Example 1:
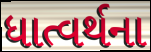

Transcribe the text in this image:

ધાત્વર્થના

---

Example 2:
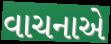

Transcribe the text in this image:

વાચનાએ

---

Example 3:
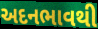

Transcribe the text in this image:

અદનભાવથી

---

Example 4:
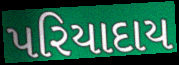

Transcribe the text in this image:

પરિયાદાય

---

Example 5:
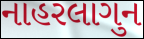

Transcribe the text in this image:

નાહરલાગુન